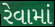
રેવામાં